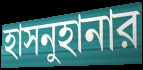
হাসনুহানার